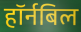
हॉर्नबिल